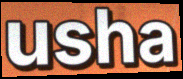
usha